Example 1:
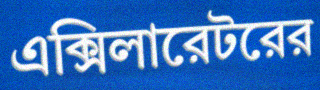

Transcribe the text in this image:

এক্সিলারেটরের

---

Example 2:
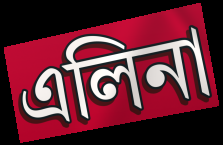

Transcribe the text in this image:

এলিনা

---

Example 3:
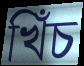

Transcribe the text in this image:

খিঁচ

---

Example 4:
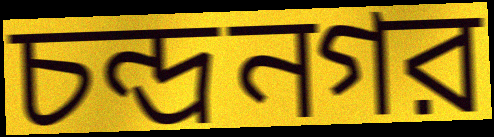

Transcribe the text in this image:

চন্দ্রনগর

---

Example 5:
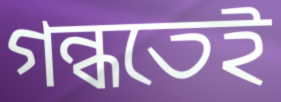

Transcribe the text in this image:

গন্ধতেই